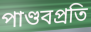
পাণ্ডবপ্রতি